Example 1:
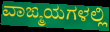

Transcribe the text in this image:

ವಾಙ್ಮಯಗಳಲ್ಲಿ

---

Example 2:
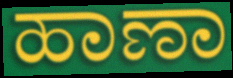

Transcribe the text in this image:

ಹಾಣಾ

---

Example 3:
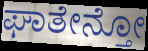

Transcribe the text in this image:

ಘಾತೇನ್ತೋ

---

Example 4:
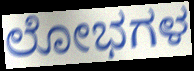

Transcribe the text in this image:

ಲೋಭಗಳ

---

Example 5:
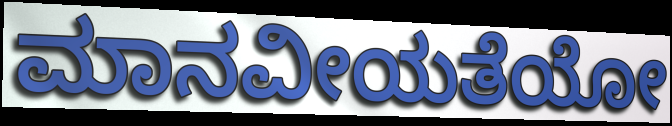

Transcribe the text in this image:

ಮಾನವೀಯತೆಯೋ